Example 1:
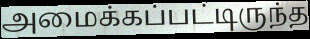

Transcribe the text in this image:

அமைக்கப்பட்டிருந்த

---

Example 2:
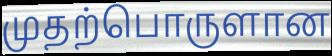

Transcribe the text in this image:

முதற்பொருளான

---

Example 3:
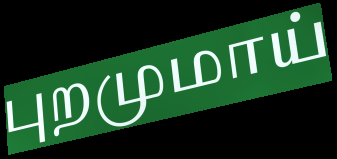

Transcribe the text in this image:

புறமுமாய்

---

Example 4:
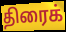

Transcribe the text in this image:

திரைக்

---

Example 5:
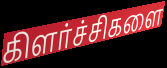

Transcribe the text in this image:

கிளர்ச்சிகளை